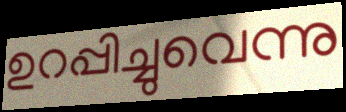
ഉറപ്പിച്ചുവെന്നു